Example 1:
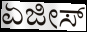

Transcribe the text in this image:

ಏಜೀಸ್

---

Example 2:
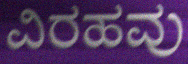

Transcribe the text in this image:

ವಿರಹವು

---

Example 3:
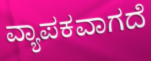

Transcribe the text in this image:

ವ್ಯಾಪಕವಾಗದೆ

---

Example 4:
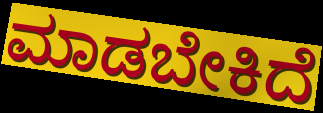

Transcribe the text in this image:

ಮಾಡಬೇಕಿದೆ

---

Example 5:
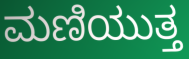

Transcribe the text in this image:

ಮಣಿಯುತ್ತ